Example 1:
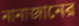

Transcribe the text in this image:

নানাজানের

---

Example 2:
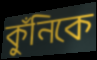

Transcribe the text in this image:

কুঁনিকে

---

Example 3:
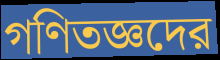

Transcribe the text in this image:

গণিতজ্ঞদের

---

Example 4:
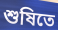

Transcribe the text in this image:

শুষিতে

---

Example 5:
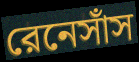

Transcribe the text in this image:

রেনেসাঁস